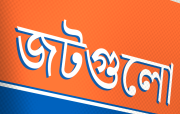
জটগুলো